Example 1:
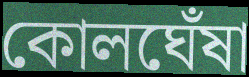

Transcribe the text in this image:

কোলঘেঁষা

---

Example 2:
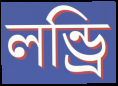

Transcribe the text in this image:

লন্ড্রি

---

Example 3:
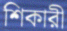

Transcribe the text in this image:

শিকারী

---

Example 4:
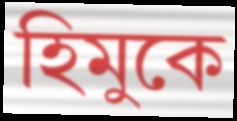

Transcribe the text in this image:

হিমুকে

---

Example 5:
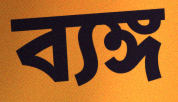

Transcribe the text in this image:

ব্যঙ্গ